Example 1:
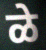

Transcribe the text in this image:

ळे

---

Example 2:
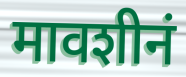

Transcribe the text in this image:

मावशीनं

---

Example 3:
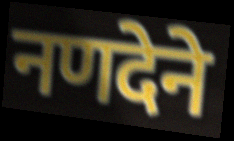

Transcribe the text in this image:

नणदेने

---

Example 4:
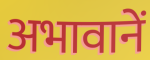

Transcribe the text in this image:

अभावानें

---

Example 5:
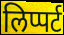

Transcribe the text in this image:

लिप्पर्ट